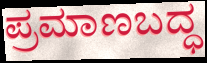
ಪ್ರಮಾಣಬದ್ಧ